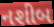
નશીબ